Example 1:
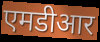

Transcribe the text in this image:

एमडीआर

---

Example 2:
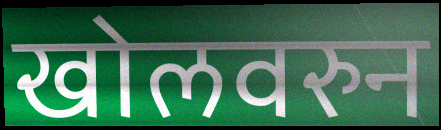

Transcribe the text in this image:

खोलवरुन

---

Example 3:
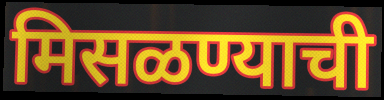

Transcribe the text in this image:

मिसळण्याची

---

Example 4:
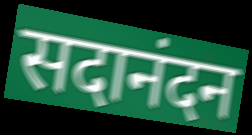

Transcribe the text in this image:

सदानंदन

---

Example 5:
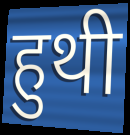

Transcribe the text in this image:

हुथी